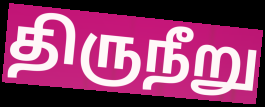
திருநீறு